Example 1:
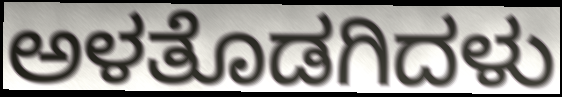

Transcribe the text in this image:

ಅಳತೊಡಗಿದಳು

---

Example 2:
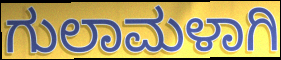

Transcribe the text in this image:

ಗುಲಾಮಳಾಗಿ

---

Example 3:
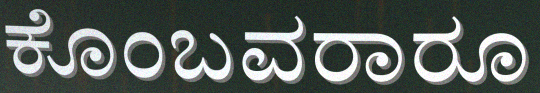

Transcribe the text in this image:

ಕೊಂಬವರಾರೂ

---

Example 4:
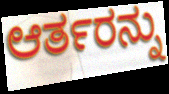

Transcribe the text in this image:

ಆರ್ತರನ್ನು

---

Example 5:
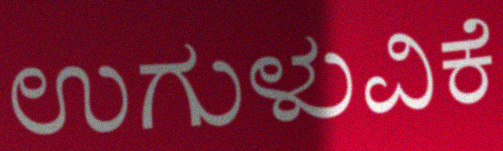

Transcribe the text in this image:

ಉಗುಳುವಿಕೆ